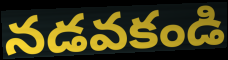
నడవకండి